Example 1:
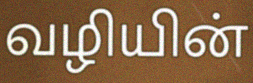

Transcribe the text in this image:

வழியின்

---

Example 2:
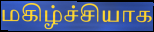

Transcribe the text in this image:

மகிழ்ச்சியாக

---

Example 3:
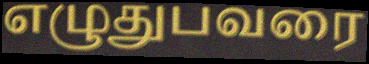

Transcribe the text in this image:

எழுதுபவரை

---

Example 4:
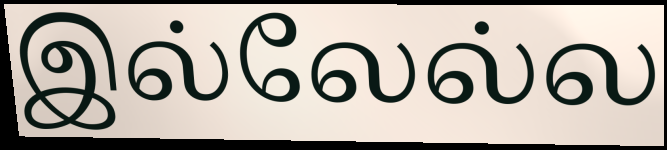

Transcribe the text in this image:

இல்லேல்ல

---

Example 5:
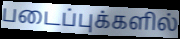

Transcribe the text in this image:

படைப்புக்களில்